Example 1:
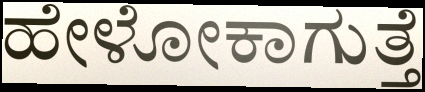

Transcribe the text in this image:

ಹೇಳೋಕಾಗುತ್ತೆ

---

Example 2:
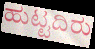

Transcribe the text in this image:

ಹುಟ್ಟದಿರು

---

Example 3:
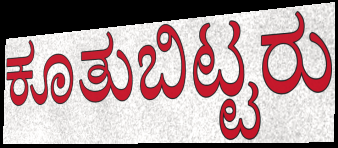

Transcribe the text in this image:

ಕೂತುಬಿಟ್ಟರು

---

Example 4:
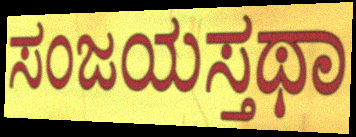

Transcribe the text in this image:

ಸಂಜಯಸ್ತಥಾ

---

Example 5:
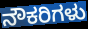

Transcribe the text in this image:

ನೌಕರಿಗಳು